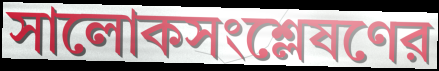
সালোকসংশ্লেষণের